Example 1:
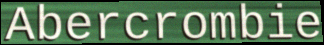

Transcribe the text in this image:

Abercrombie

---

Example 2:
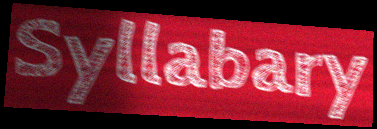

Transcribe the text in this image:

Syllabary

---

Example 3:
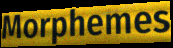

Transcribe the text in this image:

Morphemes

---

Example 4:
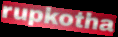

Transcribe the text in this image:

rupkotha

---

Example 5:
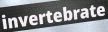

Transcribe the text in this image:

invertebrate